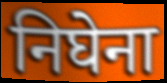
निघेना